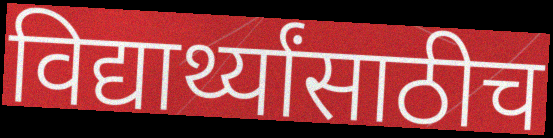
विद्यार्थ्यांसाठीच